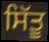
ਸਿੱਤੂ